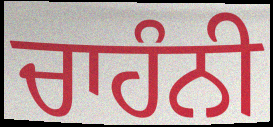
ਚਾਹੰਨੀ